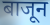
बाजून